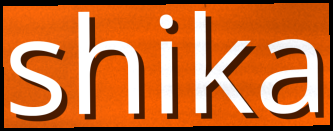
shika